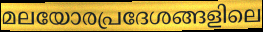
മലയോരപ്രദേശങ്ങളിലെ